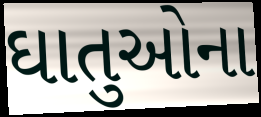
ઘાતુઓના